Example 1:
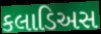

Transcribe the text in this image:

કલાડિઅસ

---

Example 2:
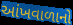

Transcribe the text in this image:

આંખવાળાનો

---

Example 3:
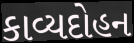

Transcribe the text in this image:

કાવ્યદોહન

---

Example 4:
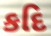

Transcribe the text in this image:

કદિ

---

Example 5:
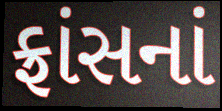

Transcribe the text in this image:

ફ્રાંસનાં